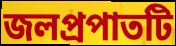
জলপ্রপাতটি